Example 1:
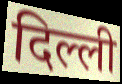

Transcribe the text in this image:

दिल्‍ली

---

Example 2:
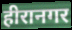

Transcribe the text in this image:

हीरानगर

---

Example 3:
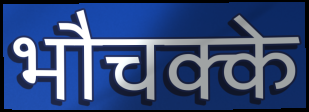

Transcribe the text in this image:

भौचक्के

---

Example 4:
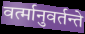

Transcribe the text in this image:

वर्त्मानुवर्तन्ते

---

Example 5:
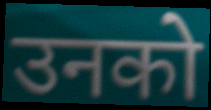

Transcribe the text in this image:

उनको